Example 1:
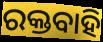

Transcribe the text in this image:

ରକ୍ତବାହି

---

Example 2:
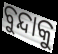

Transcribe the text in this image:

ବୁନ୍ଦାକୁ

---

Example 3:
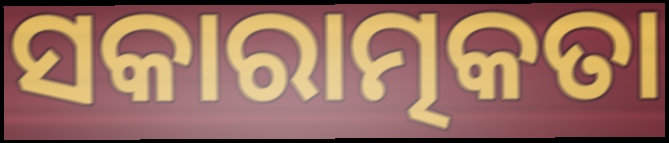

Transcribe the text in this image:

ସକାରାତ୍ମକତା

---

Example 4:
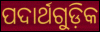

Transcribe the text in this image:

ପଦାର୍ଥଗୁଡ଼ିକ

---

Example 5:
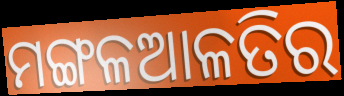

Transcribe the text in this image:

ମଙ୍ଗଳଆଳତିର